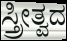
ಸ್ತ್ರೀತ್ವದ